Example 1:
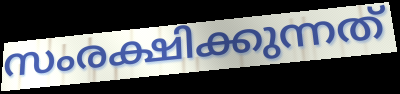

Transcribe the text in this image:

സംരക്ഷിക്കുന്നത്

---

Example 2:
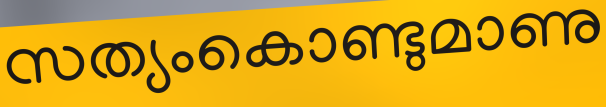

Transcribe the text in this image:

സത്യംകൊണ്ടുമാണു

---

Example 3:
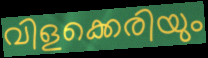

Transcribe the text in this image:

വിളക്കെരിയും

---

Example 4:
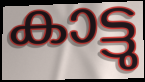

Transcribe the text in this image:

കാട്ടു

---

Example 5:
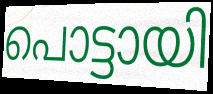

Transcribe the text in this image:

പൊട്ടായി